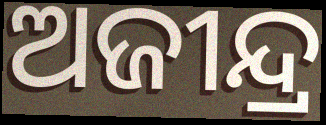
ଅଜୀନ୍ଦ୍ର